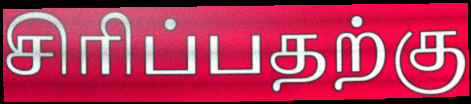
சிரிப்பதற்கு